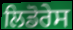
ਲਿਡੋਰੇਸ